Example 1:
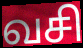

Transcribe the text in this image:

வசி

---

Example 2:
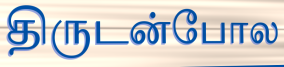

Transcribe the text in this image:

திருடன்போல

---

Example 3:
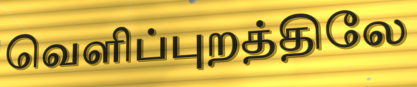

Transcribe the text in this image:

வெளிப்புறத்திலே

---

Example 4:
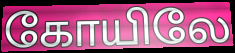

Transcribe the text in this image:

கோயிலே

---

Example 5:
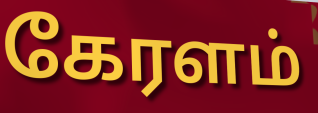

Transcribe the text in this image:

கேரளம்